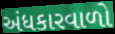
અંધકારવાળો